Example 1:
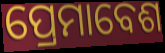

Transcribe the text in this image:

ପ୍ରେମାବେଶ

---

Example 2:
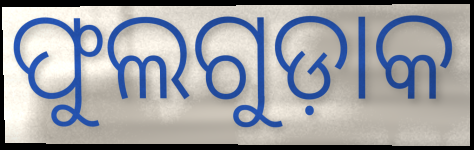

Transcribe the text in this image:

ଫୁଲଗୁଡ଼ାକ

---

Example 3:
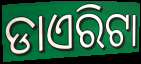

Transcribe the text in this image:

ଡାଏରିଟା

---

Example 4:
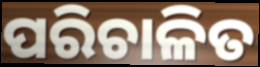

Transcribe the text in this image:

ପରିଚାଳିତ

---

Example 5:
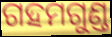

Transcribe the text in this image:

ଗହମଗୁଣ୍ଡ